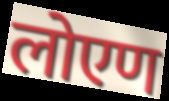
लोएण